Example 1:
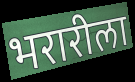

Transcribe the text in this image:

भरारीला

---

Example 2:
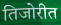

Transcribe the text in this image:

तिजोरीत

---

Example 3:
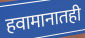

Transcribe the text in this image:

हवामानातही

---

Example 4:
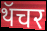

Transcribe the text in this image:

थॅचर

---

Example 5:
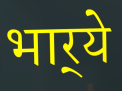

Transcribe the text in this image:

भार्ये